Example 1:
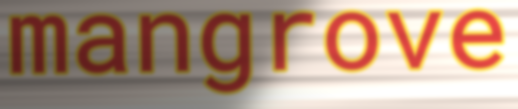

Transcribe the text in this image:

mangrove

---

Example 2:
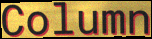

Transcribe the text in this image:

Column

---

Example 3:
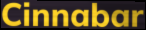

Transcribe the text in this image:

Cinnabar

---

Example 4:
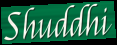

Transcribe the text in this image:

Shuddhi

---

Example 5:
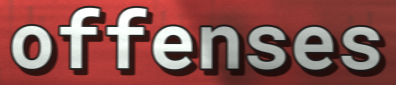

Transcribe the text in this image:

offenses